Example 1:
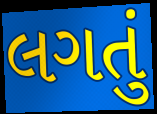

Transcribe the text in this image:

લગતું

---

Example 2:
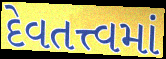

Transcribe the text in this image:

દેવતત્ત્વમાં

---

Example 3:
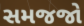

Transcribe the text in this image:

સમજજો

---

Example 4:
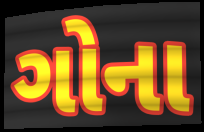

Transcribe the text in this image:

ગોના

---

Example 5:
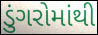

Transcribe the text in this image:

ડુંગરોમાંથી